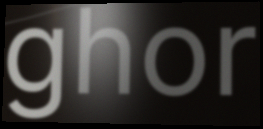
ghor